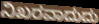
ನಿಖರವಾದುದು